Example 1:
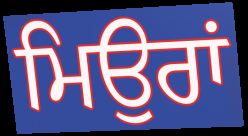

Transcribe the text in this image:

ਮਿਉਰਾਂ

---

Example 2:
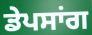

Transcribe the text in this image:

ਡੇਪਸਾਂਗ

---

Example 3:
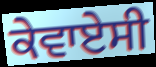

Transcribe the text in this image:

ਕੇਵਾਏਸੀ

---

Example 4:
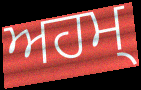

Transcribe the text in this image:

ਅਹਮ੍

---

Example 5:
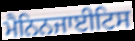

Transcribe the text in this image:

ਮੈਨਿਨਜਾਈਟਿਸ